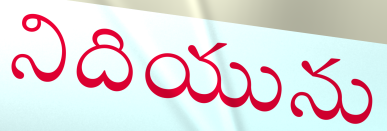
నిదియును